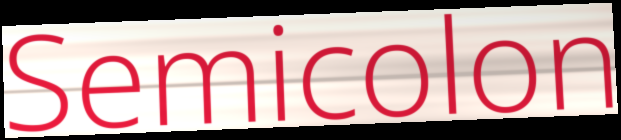
Semicolon